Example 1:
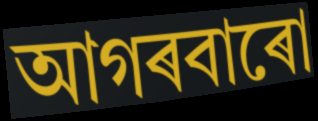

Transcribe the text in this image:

আগৰবাৰো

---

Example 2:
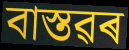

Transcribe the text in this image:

বাস্তৱৰ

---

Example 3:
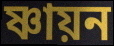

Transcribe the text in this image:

ষ্ণায়ন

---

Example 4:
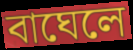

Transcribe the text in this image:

বাঘেলে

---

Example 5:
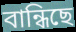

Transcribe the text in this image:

বান্ধিছে